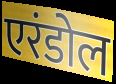
एरंडोल